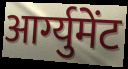
आर्ग्युमेंट